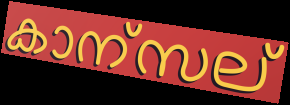
കാന്സല്